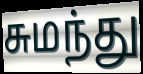
சுமந்து